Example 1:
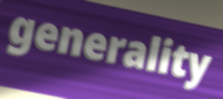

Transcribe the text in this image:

generality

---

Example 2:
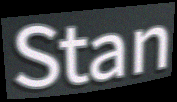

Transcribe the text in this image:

Stan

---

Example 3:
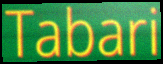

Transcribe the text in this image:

Tabari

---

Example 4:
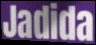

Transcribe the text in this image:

Jadida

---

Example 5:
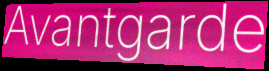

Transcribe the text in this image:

Avantgarde